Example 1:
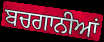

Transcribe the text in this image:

ਬਚਗਾਨੀਆਂ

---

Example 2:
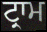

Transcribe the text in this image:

ਟ੍ਰਾਮ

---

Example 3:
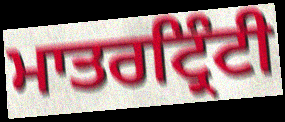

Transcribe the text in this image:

ਮਾਤਰਟ੍ਰਿੰਟੀ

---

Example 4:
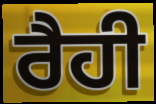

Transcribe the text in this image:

ਰੈਹੀ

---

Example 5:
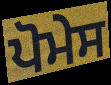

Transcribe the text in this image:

ਪੋਮੇਸ